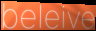
beleive